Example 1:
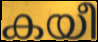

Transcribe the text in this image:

കയീ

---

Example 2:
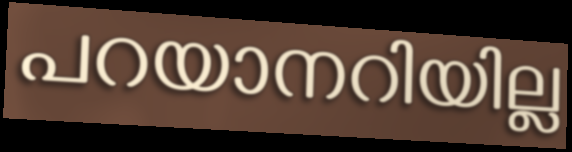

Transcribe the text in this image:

പറയാനറിയില്ല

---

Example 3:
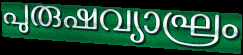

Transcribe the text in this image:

പുരുഷവ്യാഘ്രം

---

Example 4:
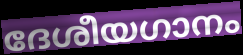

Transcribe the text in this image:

ദേശീയഗാനം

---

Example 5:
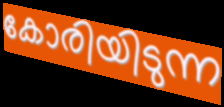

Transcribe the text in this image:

കോരിയിടുന്ന